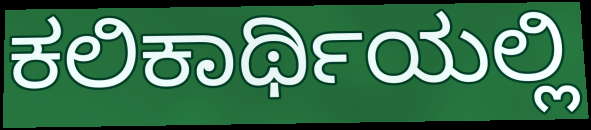
ಕಲಿಕಾರ್ಥಿಯಲ್ಲಿ